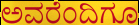
ಅವರೆಂದಿಗೂ